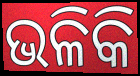
ଭଳିକି